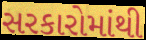
સરકારોમાંથી